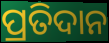
ପ୍ରତିଦାନ